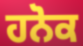
ਹਨੋਕ